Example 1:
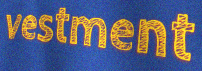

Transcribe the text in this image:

vestment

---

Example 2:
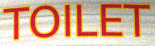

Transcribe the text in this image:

TOILET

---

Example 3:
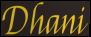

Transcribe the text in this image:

Dhani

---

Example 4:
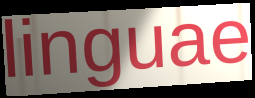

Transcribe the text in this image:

linguae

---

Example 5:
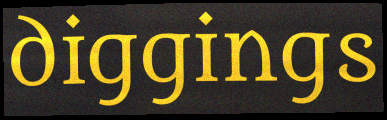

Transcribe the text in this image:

diggings